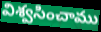
విశ్వసించాము